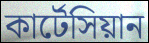
কার্টেসিয়ান